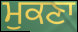
ਮੁਕਣਾ